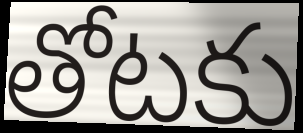
తోటకు